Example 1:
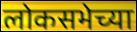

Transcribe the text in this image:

लोकसभेच्या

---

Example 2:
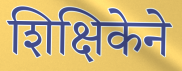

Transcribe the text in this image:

शिक्षिकेने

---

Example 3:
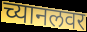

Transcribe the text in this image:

च्यानलवर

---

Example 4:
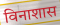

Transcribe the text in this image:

विनाशास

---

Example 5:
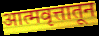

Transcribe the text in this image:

आत्मवृत्तातून